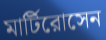
মার্টিরোসেন